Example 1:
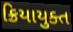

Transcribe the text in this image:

ક્રિયાયુક્ત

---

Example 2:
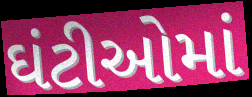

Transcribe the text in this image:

ઘંટીઓમાં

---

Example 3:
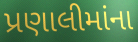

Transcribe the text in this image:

પ્રણાલીમાંના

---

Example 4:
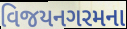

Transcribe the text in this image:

વિજયનગરમના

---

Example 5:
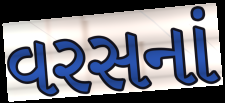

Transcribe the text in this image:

વરસનાં